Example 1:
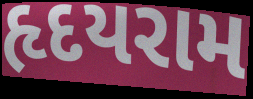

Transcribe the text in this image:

હૃદયરામ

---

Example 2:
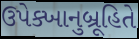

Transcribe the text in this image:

ઉપેક્ખાનુબ્રૂહિતે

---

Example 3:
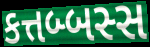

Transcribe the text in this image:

કત્તબ્બસ્સ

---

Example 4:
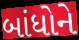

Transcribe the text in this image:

બાંધોને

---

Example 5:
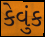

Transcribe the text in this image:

કેવુંક